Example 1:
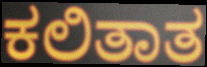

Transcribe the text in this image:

ಕಲಿತಾತ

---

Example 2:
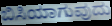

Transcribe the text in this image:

ಬಿಸಿಯಾಗುವುದು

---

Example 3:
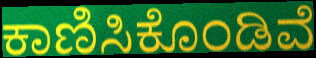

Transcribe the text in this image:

ಕಾಣಿಸಿಕೊಂಡಿವೆ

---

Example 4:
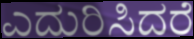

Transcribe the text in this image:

ಎದುರಿಸಿದರೆ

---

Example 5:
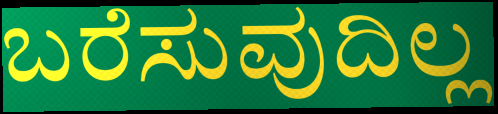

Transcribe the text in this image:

ಬರೆಸುವುದಿಲ್ಲ